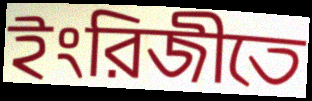
ইংরিজীতে